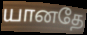
யானதே